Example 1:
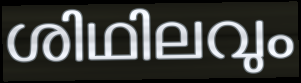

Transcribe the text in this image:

ശിഥിലവും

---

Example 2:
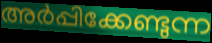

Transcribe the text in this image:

അർപ്പിക്കേണ്ടുന്ന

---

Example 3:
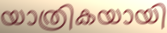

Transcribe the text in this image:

യാത്രികയായി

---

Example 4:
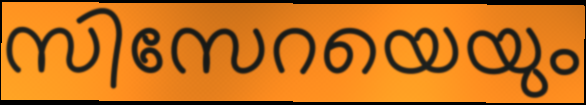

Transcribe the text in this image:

സിസേറയെയും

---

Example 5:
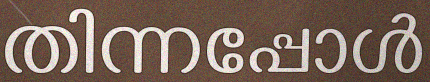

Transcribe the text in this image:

തിന്നപ്പോൾ